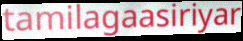
tamilagaasiriyar